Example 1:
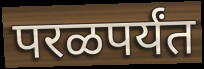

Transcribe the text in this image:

परळपर्यंत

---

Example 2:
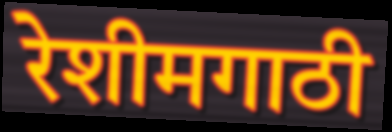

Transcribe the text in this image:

रेशीमगाठी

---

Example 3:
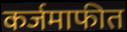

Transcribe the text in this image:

कर्जमाफीत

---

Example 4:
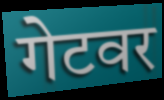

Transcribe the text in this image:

गेटवर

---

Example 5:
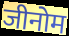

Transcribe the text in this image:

जीनोम